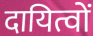
दायित्वों